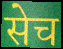
सेच